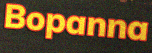
Bopanna